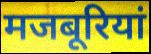
मजबूरियां